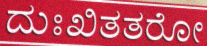
ದುಃಖಿತತರೋ